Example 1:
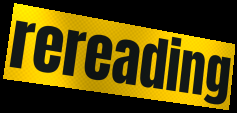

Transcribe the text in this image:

rereading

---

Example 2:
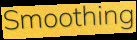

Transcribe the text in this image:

Smoothing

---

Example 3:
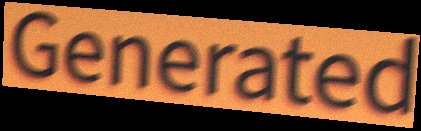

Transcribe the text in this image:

Generated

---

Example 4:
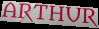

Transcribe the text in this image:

ARTHUR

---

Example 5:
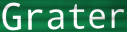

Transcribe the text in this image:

Grater